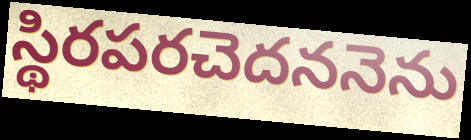
స్థిరపరచెదననెను